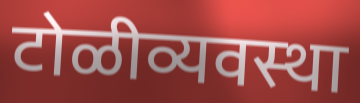
टोळीव्यवस्था